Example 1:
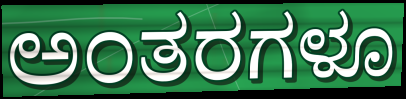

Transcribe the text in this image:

ಅಂತರಗಳೂ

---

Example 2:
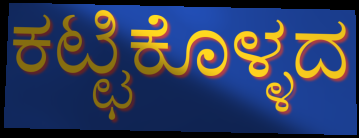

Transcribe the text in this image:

ಕಟ್ಟಿಕೊಳ್ಳದ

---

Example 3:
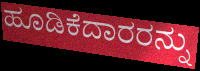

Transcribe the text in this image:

ಹೂಡಿಕೆದಾರರನ್ನು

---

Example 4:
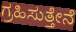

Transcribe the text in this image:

ಗ್ರಹಿಸುತ್ತೇನೆ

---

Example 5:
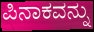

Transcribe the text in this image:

ಪಿನಾಕವನ್ನು